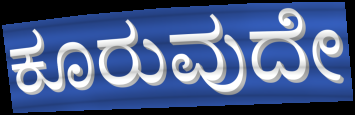
ಕೂರುವುದೇ